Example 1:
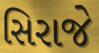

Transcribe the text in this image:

સિરાજે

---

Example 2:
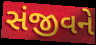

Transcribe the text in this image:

સંજીવને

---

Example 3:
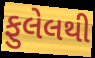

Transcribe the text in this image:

ફુલેલથી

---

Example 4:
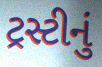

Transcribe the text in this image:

ટ્રસ્ટીનું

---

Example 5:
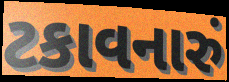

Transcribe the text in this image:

ટકાવનારું